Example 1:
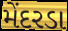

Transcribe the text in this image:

મેંદરડા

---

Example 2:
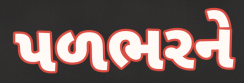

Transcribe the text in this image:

પળભરને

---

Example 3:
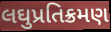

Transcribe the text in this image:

લઘુપ્રતિક્રમણ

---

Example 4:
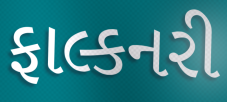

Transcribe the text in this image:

ફાલ્કનરી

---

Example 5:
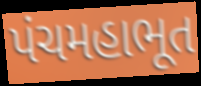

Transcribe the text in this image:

પંચમહાભૂત